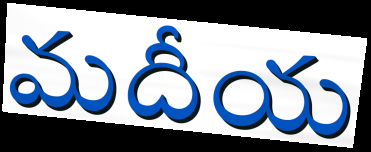
మదీయ